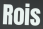
Rois